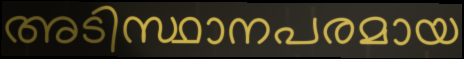
അടിസ്ഥാനപരമായ